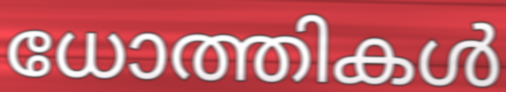
ധോത്തികൾ